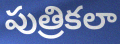
పుత్రికలా